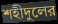
শহীদুলের